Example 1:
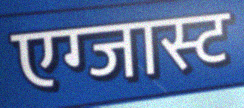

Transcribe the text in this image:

एग्जास्ट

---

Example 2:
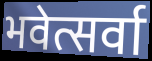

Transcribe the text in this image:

भवेत्सर्वा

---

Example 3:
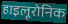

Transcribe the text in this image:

हाइलूरोनिक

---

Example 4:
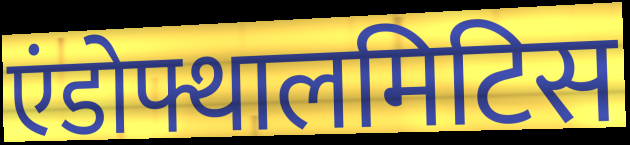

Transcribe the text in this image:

एंडोफ्थालमिटिस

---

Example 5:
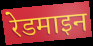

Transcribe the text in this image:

रेडमाइन